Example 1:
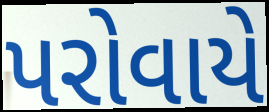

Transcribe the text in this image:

પરોવાયે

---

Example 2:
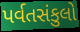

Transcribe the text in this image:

પર્વતસંકુલો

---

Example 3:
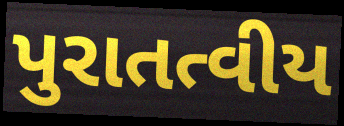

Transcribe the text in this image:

પુરાતત્વીય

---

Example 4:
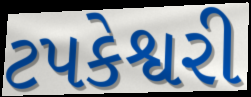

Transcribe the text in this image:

ટપકેશ્વરી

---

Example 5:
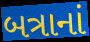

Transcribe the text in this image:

બત્રાનાં